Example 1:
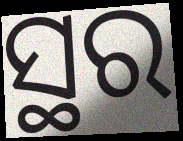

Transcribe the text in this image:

ସ୍ଥର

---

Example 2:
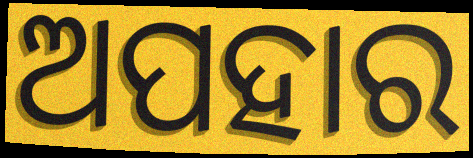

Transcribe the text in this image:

ଅପହାର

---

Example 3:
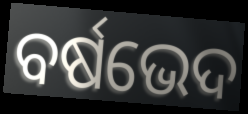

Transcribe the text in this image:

ବର୍ଷଭେଦ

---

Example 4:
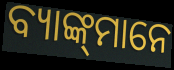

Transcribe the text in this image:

ବ୍ୟାଙ୍କ୍‌ମାନେ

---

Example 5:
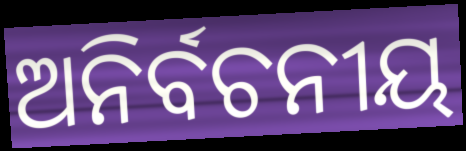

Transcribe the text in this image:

ଅନିର୍ବଚନୀୟ